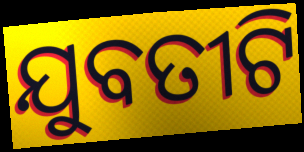
ଯୁବତୀଟି